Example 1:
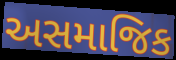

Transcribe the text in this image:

અસમાજિક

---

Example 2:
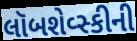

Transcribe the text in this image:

લૉબશેવ્સ્કીની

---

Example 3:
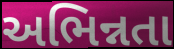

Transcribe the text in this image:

અભિન્નતા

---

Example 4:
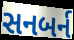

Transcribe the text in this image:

સનબર્ન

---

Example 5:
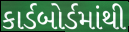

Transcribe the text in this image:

કાર્ડબોર્ડમાંથી